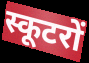
स्कूटरों